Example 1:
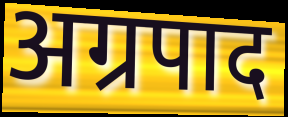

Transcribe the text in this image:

अग्रपाद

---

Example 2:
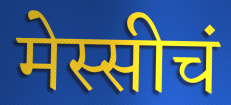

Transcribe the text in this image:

मेस्सीचं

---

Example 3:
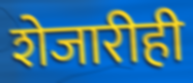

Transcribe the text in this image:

शेजारीही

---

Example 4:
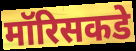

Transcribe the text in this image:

मॉरिसकडे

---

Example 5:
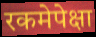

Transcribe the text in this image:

रकमेपेक्षा